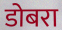
डोबरा